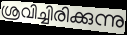
ശ്രവിച്ചിരിക്കുന്നു